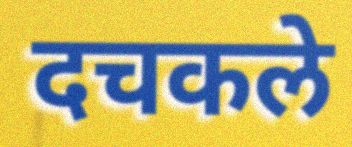
दचकले